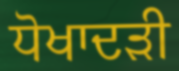
ਧੋਖਾਦੜੀ